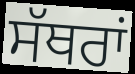
ਸੱਥਰਾਂ